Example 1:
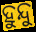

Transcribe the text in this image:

ହୁନ୍ଦୁ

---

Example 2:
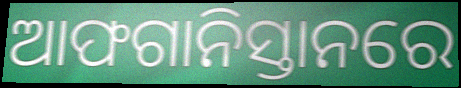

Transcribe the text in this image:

ଆଫଗାନିସ୍ତାନରେ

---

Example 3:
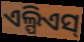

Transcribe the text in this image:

ଏଲ୍ପିଏସ୍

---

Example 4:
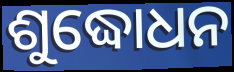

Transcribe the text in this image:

ଶୁଦ୍ଧୋଧନ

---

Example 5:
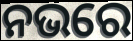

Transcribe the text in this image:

ନଭରେ